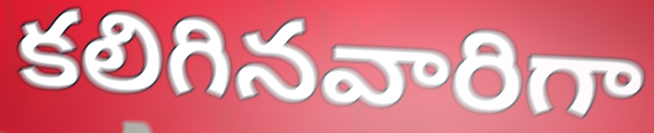
కలిగినవారిగా